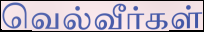
வெல்வீர்கள்